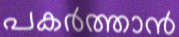
പകർത്താൻ